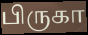
பிருகா